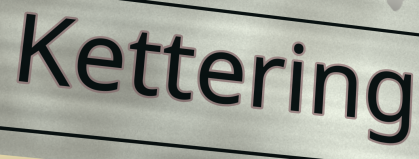
Kettering